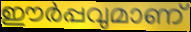
ഈർപ്പവുമാണ്